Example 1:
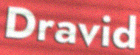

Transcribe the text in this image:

Dravid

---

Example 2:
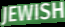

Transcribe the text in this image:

JEWISH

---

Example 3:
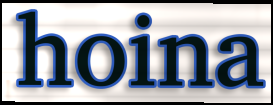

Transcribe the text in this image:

hoina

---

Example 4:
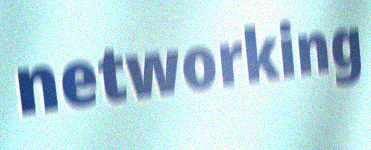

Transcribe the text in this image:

networking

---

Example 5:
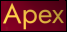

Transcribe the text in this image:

Apex